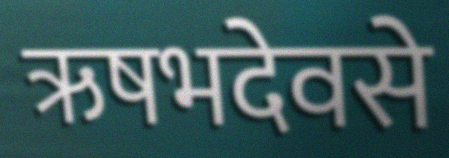
ऋषभदेवसे